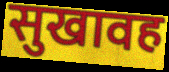
सुखावह